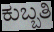
ಕುಬ್ಬತಿ